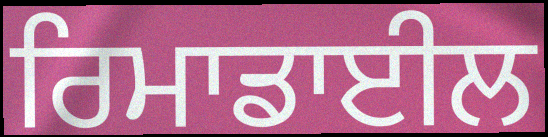
ਰਿਮਾਡਾਈਲ